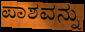
ಪಾಶವನ್ನು